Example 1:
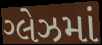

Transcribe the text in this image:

ગ્લેઝમાં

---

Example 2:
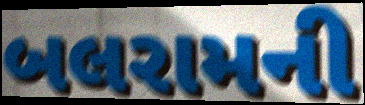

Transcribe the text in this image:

બલરામની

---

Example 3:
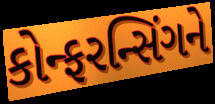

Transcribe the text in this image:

કોન્ફરન્સિંગને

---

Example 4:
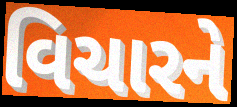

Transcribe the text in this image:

વિચારને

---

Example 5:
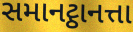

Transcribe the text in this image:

સમાનટ્ઠાનત્તા